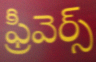
ఫ్రీవెర్స్